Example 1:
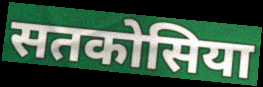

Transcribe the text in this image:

सतकोसिया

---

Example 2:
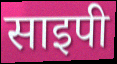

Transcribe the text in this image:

साइपी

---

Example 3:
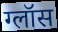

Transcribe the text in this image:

ग्लॉस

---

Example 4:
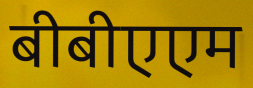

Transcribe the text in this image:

बीबीएएम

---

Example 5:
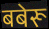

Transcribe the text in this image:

बबेरू